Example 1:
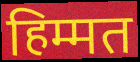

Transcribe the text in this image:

हिम्‍मत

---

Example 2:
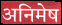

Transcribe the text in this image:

अनिमेष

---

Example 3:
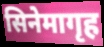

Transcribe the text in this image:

सिनेमागृह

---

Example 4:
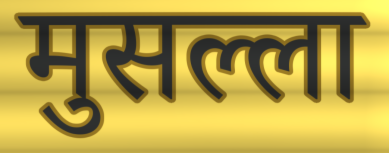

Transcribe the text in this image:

मुसल्ला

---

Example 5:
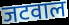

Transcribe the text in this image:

जटवाल